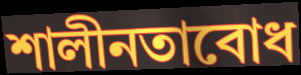
শালীনতাবোধ